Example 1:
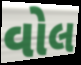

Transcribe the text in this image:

વોલ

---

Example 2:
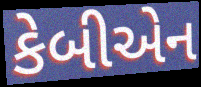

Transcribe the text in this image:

કેબીએન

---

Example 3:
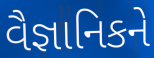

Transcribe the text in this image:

વૈજ્ઞાનિકને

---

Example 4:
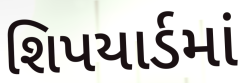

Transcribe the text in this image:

શિપયાર્ડમાં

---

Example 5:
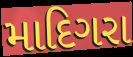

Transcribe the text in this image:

માદિગરા